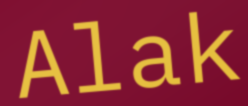
Alak